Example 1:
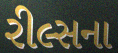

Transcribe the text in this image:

રીલ્સના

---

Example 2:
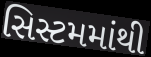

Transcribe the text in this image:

સિસ્ટમમાંથી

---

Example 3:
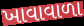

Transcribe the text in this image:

ખાવાવાળા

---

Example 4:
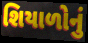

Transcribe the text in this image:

શિયાળોનું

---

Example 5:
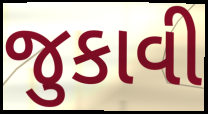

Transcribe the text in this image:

જુકાવી